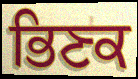
ਭਿਣਕ